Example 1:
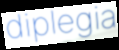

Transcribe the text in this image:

diplegia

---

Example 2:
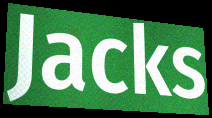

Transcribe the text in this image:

Jacks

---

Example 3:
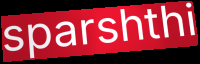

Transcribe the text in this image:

sparshthi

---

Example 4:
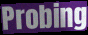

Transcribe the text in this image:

Probing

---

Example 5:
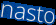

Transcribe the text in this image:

nasto